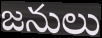
జనులు